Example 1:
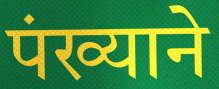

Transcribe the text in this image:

पंख्याने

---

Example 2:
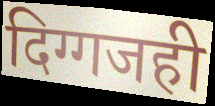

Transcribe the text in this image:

दिग्गजही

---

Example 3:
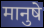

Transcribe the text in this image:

मानुषे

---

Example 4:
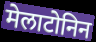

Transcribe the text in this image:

मेलाटोनिन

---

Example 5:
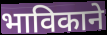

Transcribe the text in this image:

भाविकाने